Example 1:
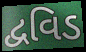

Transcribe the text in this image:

દ્વવિડ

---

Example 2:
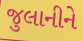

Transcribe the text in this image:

જુલાનીને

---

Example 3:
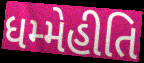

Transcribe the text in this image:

ધમ્મેહીતિ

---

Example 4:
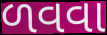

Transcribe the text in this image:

ળવવા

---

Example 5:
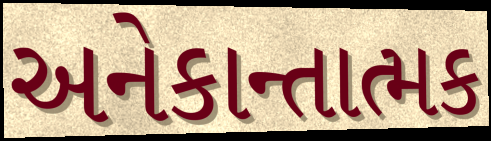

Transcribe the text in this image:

અનેકાન્તાત્મક